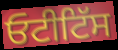
ਓਟੀਟਿੱਸ